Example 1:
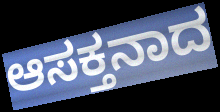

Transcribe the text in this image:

ಆಸಕ್ತನಾದ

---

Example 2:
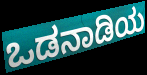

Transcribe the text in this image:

ಒಡನಾಡಿಯ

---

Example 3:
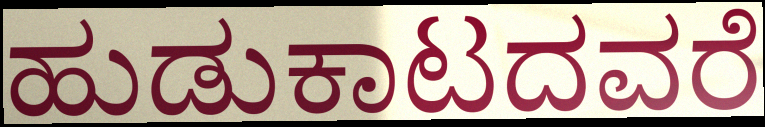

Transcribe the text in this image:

ಹುಡುಕಾಟದವರೆ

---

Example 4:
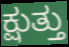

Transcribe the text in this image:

ಕ್ಷುತ್ತು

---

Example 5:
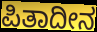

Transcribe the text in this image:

ಪಿತಾದೀನ